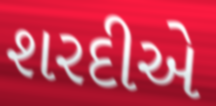
શરદીએ